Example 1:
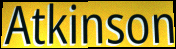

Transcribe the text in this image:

Atkinson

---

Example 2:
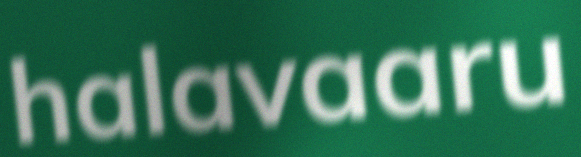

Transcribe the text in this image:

halavaaru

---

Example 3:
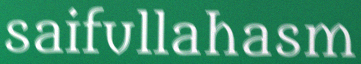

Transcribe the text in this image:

saifullahasm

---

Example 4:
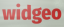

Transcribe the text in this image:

widgeo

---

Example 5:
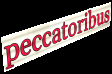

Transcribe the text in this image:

peccatoribus